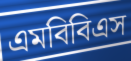
এমবিবিএস